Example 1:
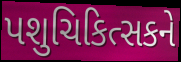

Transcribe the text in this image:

પશુચિકિત્સકને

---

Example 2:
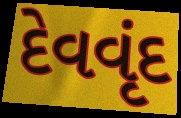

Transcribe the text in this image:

દેવવૃંદ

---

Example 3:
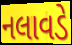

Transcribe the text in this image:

નલાવડે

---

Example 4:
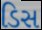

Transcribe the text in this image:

ડિસ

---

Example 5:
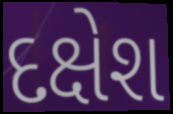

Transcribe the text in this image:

દક્ષેશ